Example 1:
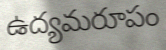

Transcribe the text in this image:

ఉద్యమరూపం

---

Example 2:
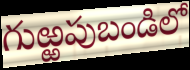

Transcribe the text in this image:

గుఱ్ఱపుబండిలో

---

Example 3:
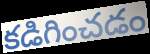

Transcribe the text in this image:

కడిగించడం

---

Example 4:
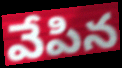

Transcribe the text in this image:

వేపిన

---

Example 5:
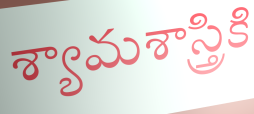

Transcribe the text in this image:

శ్యామశాస్త్రికి